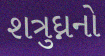
શત્રુઘ્નનો